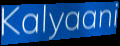
Kalyaani